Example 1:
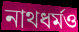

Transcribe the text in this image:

নাথধর্মও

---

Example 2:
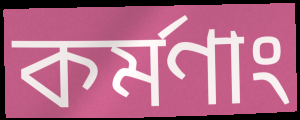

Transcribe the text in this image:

কর্মণাং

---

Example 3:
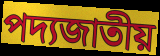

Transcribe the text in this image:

পদ্যজাতীয়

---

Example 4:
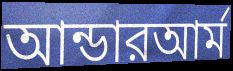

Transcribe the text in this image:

আন্ডারআর্ম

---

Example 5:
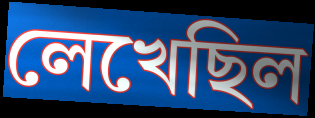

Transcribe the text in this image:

লেখেছিল